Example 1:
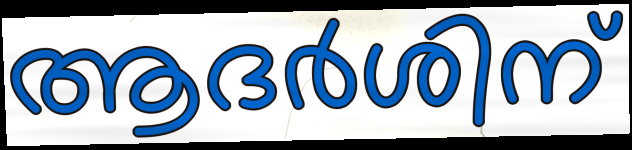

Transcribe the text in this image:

ആദർശിന്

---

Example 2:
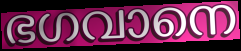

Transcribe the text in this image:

ഭഗവാനെ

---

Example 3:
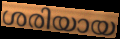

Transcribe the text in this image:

ശരിയായ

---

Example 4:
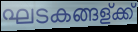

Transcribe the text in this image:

ഘടകങ്ങള്ക്ക്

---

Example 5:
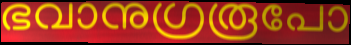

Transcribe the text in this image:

ഭവാനുഗ്രരൂപോ